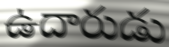
ఉదారుడు